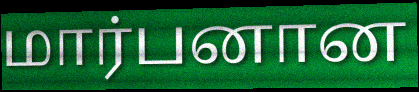
மார்பனான